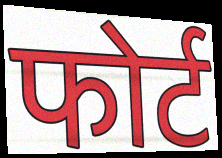
फोर्ट